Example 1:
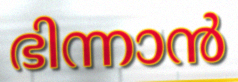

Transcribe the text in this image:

ഭിന്നാൻ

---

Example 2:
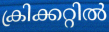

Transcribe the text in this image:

ക്രിക്കറ്റിൽ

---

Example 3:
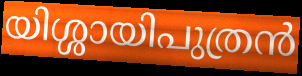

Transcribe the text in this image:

യിശ്ശായിപുത്രൻ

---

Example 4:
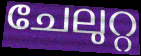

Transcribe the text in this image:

ചേലുറ്റ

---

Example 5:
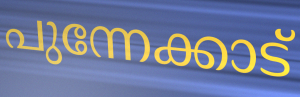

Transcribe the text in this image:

പുന്നേക്കാട്